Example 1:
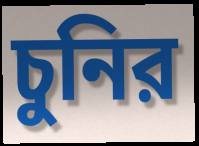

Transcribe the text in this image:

চুনির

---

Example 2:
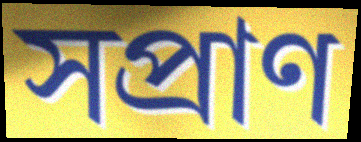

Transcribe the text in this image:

সপ্রাণ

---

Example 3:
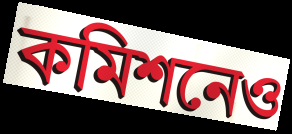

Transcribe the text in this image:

কমিশনেও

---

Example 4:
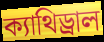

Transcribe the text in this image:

ক্যাথিড্রাল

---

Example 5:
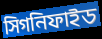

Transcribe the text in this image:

সিগনিফাইড